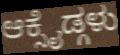
ಆಕ್ಸೈಡ್ಗಳು